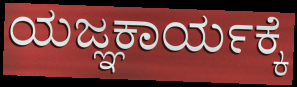
ಯಜ್ಞಕಾರ್ಯಕ್ಕೆ